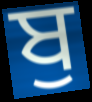
ਬੁ